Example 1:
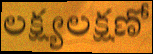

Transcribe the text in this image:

లక్ష్యలక్షణో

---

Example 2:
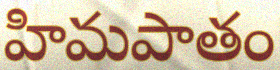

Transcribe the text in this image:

హిమపాతం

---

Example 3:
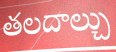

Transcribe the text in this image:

తలదాల్చు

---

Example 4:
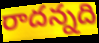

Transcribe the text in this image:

రాదన్నది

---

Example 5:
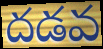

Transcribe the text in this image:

దడవ